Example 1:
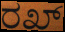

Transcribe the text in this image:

ರಖ್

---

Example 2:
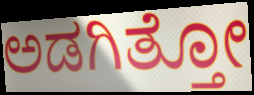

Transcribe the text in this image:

ಅಡಗಿತ್ತೋ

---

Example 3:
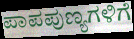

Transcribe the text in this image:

ಪಾಪಪುಣ್ಯಗಳಿಗೆ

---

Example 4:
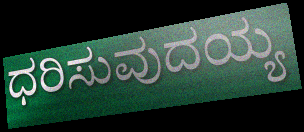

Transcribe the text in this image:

ಧರಿಸುವುದಯ್ಯ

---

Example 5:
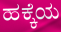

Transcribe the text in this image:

ಹಕ್ಕೆಯ